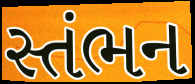
સ્તંભન